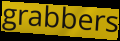
grabbers